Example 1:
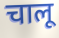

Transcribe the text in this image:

चालू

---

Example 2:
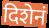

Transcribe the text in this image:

दिशेनं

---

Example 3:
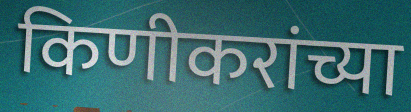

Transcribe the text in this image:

किणीकरांच्या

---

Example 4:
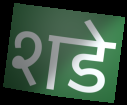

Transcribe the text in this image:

शडे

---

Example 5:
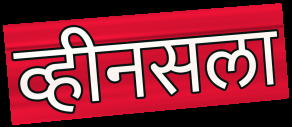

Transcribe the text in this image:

व्हीनसला